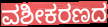
ವಶೀಕರಣದ